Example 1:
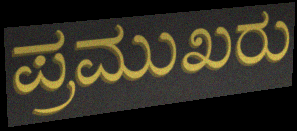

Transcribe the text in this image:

ಪ್ರಮುಖರು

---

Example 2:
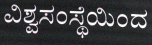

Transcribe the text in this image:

ವಿಶ್ವಸಂಸ್ಥೆಯಿಂದ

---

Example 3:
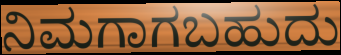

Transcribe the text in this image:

ನಿಮಗಾಗಬಹುದು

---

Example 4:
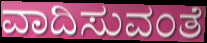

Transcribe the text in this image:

ವಾದಿಸುವಂತೆ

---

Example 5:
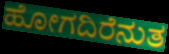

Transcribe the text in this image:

ಹೋಗದಿರೆನುತ